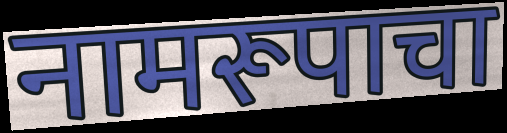
नामरूपाचा